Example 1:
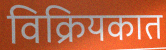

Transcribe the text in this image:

विक्रियकात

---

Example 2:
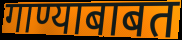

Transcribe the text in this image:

गाण्याबाबत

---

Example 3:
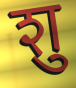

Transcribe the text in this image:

शु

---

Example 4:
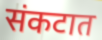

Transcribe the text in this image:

संकटात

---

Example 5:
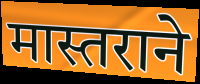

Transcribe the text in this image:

मास्तराने